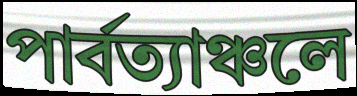
পার্বত্যাঞ্চলে